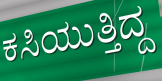
ಕಸಿಯುತ್ತಿದ್ದ